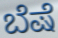
ಬೆಷೆ